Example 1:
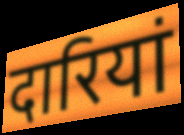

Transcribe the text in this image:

दारियां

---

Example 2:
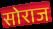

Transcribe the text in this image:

सोराज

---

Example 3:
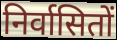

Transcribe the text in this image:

निर्वासितों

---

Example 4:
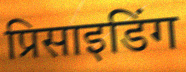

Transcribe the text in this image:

प्रिसाइडिंग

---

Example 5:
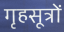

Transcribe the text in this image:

गृहसूत्रों